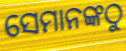
ସେମାନଙ୍କଠୁ